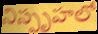
నిస్పృహలో